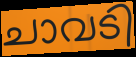
ചാവടി